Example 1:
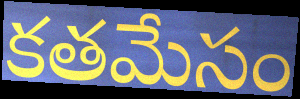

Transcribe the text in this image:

కతమేసం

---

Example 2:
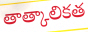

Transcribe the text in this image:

తాత్కాలికత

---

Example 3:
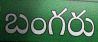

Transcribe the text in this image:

బంగరు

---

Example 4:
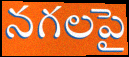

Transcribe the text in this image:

నగలపై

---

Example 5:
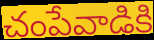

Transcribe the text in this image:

చంపేవాడికి